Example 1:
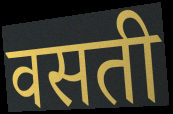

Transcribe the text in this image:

वसती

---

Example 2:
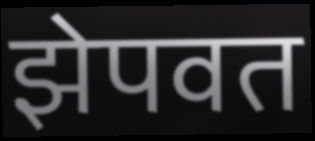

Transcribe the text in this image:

झेपवत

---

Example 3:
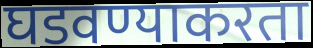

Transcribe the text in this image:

घडवण्याकरता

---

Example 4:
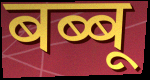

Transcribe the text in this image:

बब्बू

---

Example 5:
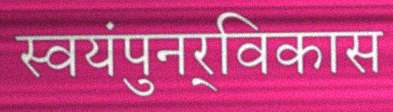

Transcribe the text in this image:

स्वयंपुनर्विकास